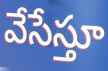
వేసేస్తూ